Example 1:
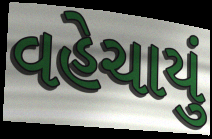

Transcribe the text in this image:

વહેચાયું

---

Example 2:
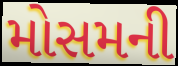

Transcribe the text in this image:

મોસમની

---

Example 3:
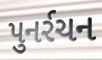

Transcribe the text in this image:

પુનર્રચન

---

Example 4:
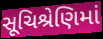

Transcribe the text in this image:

સૂચિશ્રેણિમાં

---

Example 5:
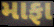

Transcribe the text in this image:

માફા